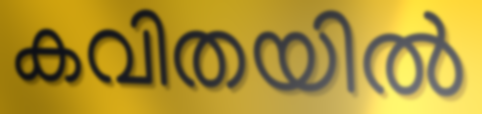
കവിതയിൽ